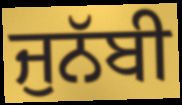
ਜੁਨੱਬੀ